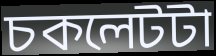
চকলেটটা